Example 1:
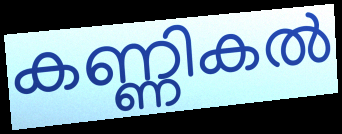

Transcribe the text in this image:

കണ്ണികൽ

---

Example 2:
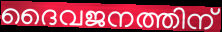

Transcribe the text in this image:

ദൈവജനത്തിന്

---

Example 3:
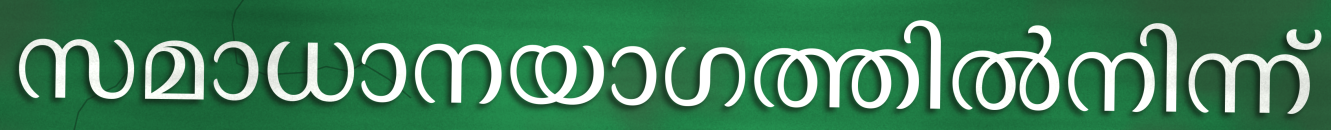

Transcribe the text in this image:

സമാധാനയാഗത്തിൽനിന്ന്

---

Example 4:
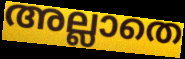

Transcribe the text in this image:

അല്ലാതെ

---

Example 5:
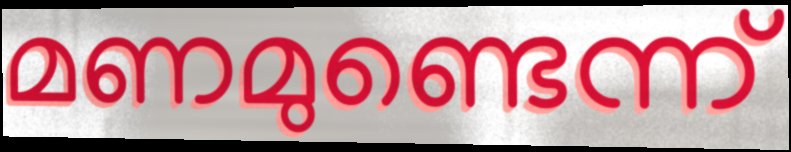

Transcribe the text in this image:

മണമുണ്ടെന്ന്